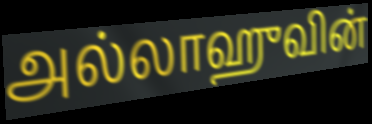
அல்லாஹுவின்